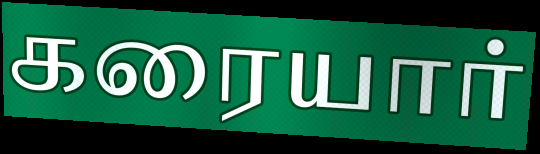
கரையார்